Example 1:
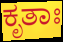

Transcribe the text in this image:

ಕೃತಾಃ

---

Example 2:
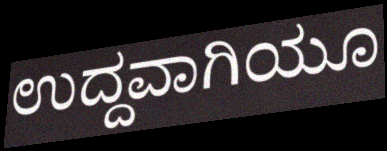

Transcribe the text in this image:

ಉದ್ದವಾಗಿಯೂ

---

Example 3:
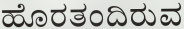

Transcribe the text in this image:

ಹೊರತಂದಿರುವ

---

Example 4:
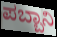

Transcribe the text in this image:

ಪಬ್ಬಾನಿ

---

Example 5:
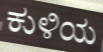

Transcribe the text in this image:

ಕುಳಿಯ